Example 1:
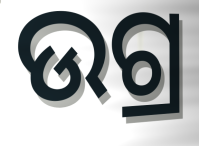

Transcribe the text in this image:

ଉଗ୍ର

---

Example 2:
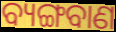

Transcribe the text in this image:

ବ୍ୟଙ୍ଗବାଣ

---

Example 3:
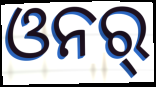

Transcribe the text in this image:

ଓନର୍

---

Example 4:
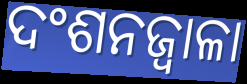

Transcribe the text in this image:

ଦଂଶନଜ୍ୱାଳା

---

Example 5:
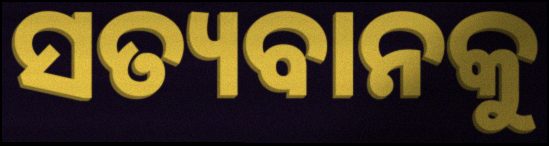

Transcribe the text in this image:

ସତ୍ୟବାନକୁ